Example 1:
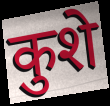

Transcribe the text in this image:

कुशे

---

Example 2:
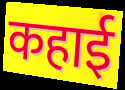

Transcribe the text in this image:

कहाई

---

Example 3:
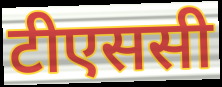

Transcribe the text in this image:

टीएससी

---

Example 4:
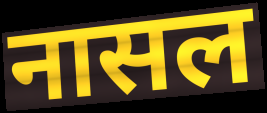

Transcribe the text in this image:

नासल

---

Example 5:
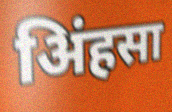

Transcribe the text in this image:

अिंहसा